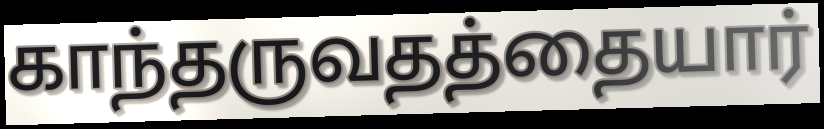
காந்தருவதத்தையார்